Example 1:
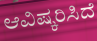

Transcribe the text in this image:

ಆವಿಷ್ಕರಿಸಿದೆ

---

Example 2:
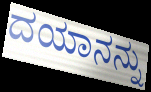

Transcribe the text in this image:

ದಯಾನನ್ನು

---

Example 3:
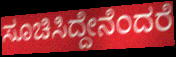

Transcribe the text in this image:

ಸೂಚಿಸಿದ್ದೇನೆಂದರೆ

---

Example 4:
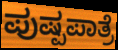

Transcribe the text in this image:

ಪುಷ್ಪಪಾತ್ರೆ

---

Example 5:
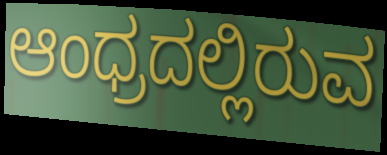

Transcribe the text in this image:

ಆಂಧ್ರದಲ್ಲಿರುವ